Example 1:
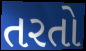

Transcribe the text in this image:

તરતો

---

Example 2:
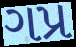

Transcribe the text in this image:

ગપ્ર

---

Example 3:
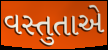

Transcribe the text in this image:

વસ્તુતાએ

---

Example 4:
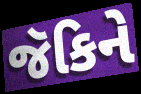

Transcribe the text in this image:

જૅકિને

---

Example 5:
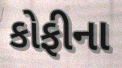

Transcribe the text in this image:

કોફીના